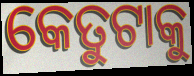
କେତୁଟାକୁ